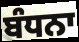
ਬੰਧਨਾ